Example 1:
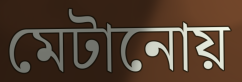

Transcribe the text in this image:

মেটানোয়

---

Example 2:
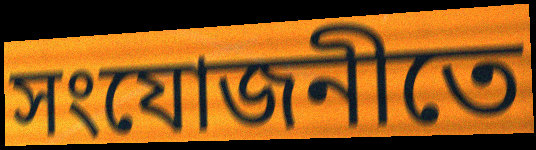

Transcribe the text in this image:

সংযোজনীতে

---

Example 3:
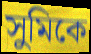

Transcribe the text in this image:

সুমিকে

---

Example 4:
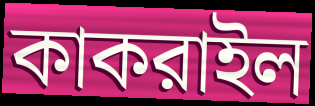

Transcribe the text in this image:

কাকরাইল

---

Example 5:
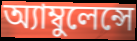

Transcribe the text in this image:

অ্যাম্বুলেন্সে